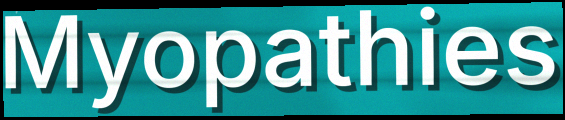
Myopathies